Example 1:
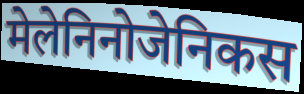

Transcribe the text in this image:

मेलेनिनोजेनिकस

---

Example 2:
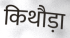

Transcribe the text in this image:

किथौड़ा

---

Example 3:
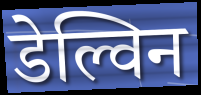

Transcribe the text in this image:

डेल्विन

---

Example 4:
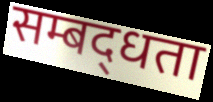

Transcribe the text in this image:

सम्‍बद्धता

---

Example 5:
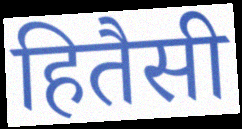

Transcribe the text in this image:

हितैसी